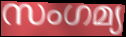
സംഗമ്യ